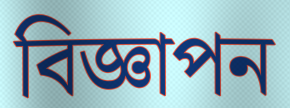
বিজ্ঞাপন